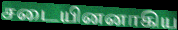
சடையினனாகிய